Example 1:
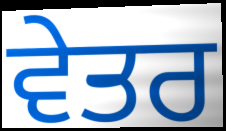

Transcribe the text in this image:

ਵੇਤਰ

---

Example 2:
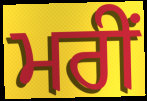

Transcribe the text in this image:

ਮਰੀਂ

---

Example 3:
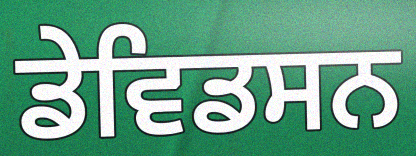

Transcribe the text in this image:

ਡੇਵਿਡਸਨ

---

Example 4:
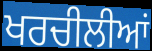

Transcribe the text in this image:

ਖਰਚੀਲੀਆਂ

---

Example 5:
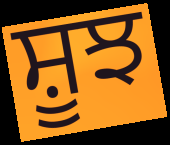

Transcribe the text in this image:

ਸ਼ੂਝ